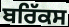
ਬਰਿੱਕਸ